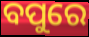
ବପୁରେ